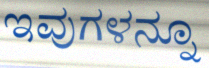
ಇವುಗಳನ್ನೂ